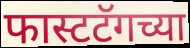
फास्टटॅगच्या